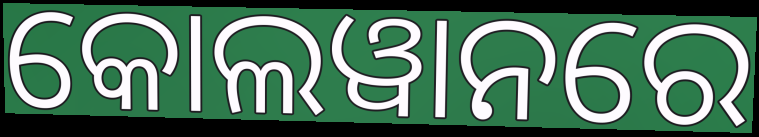
କୋଲୱାନରେ